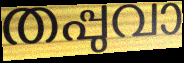
തപ്പുവാ